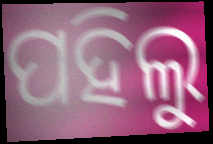
ପହିଲୁ